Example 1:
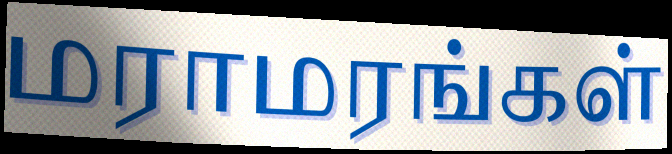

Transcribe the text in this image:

மராமரங்கள்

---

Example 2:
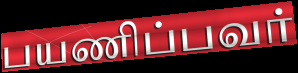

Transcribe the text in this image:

பயணிப்பவர்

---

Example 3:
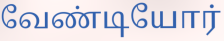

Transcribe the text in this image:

வேண்டியோர்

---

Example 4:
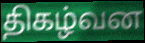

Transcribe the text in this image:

திகழ்வன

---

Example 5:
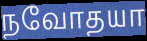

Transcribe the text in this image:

நவோதயா